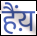
हैंय़